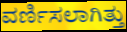
ವರ್ಣಿಸಲಾಗಿತ್ತು